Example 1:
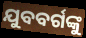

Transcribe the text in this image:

ଯୁବବର୍ଗଙ୍କୁ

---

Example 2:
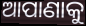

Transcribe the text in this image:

ଆପାଣାକୁ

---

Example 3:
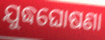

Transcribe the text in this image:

ଯୁଦ୍ଧଘୋଷଣା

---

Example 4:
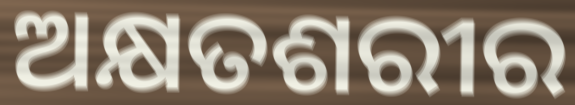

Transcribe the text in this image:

ଅକ୍ଷତଶରୀର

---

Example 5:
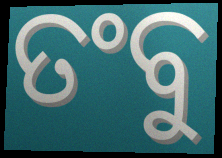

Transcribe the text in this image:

ତଂବୁ